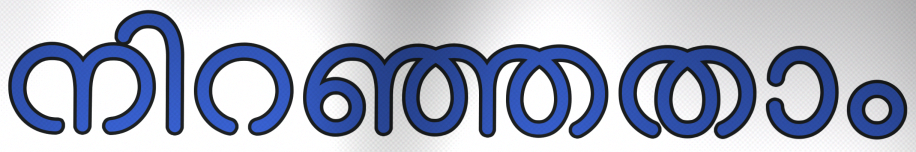
നിറഞ്ഞതാം